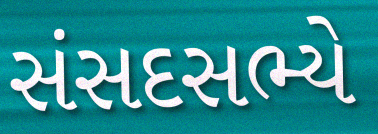
સંસદસભ્યે